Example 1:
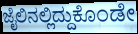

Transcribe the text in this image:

ಜೈಲಿನಲ್ಲಿದ್ದುಕೊಂಡೇ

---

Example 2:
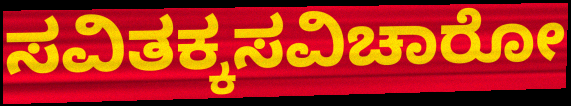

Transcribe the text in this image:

ಸವಿತಕ್ಕಸವಿಚಾರೋ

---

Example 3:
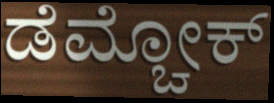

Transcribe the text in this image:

ಡೆಮ್ಚೋಕ್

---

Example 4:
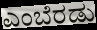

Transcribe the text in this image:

ಎಂಬೆರಡು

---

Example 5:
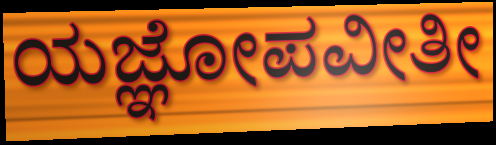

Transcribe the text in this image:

ಯಜ್ಞೋಪವೀತೀ